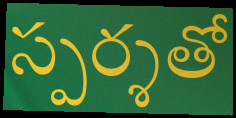
స్పర్శతో